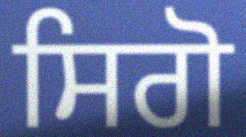
ਸਿਗੋ